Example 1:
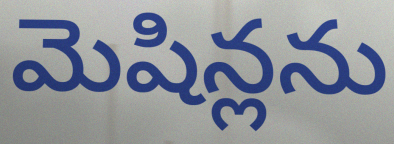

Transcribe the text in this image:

మెషిన్లను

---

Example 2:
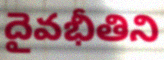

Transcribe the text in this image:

దైవభీతిని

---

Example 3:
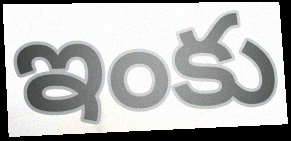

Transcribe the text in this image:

ఇంకు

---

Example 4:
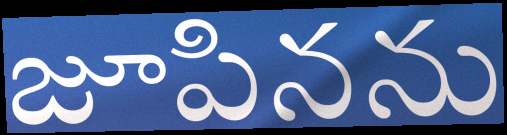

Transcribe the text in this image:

జూపినను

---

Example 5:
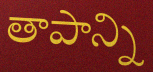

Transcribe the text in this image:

తాపాన్ని